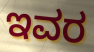
ಇವರ